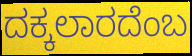
ದಕ್ಕಲಾರದೆಂಬ